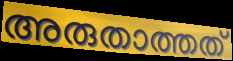
അരുതാത്തത്